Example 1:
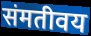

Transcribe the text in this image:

संमतीवय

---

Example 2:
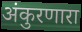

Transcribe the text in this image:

अंकुरणारा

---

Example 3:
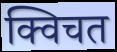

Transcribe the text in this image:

क्विचत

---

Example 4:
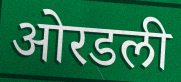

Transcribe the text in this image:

ओरडली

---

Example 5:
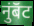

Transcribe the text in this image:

नुंबॅट